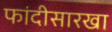
फांदीसारखा